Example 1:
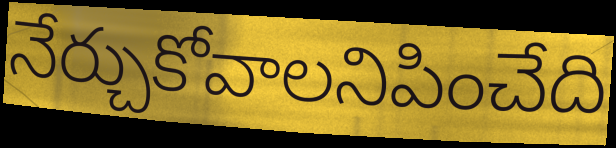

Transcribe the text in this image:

నేర్చుకోవాలనిపించేది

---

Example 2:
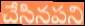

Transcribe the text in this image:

చేసినపని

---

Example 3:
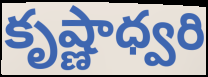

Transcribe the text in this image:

కృష్ణాధ్వరి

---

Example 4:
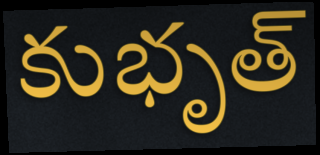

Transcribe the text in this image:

కుభృత్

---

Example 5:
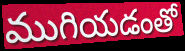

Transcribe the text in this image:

ముగియడంతో